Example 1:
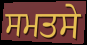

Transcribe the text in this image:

ਸਮਤਸੇ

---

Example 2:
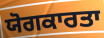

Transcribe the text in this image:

ਯੋਗਕਾਰਤਾ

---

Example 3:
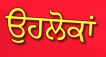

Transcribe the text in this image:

ਉਹਲੋਕਾਂ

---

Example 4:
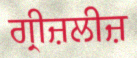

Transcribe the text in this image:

ਗ੍ਰੀਜ਼ਲੀਜ਼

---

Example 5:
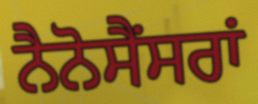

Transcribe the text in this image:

ਨੈਨੋਸੈਂਸਰਾਂ